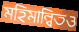
মহিমান্বিতও